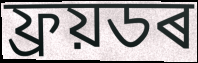
ফ্ৰয়ডৰ